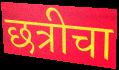
छत्रीचा